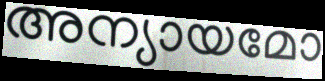
അന്യായമോ